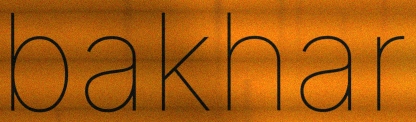
bakhar